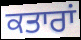
ਕਤਾਰਾਂ